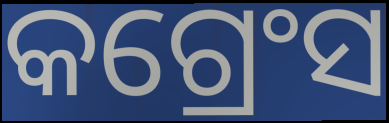
କଗ୍ରେଂସ